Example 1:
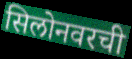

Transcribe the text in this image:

सिलोनवरची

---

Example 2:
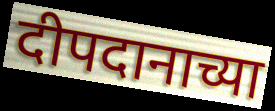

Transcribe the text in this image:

दीपदानाच्या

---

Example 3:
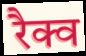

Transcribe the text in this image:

रैक्व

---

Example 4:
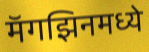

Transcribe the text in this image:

मॅगझिनमध्ये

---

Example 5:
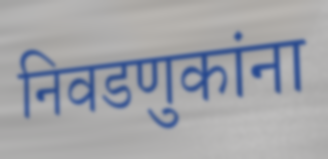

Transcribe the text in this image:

निवडणुकांना